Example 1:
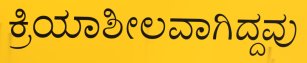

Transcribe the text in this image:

ಕ್ರಿಯಾಶೀಲವಾಗಿದ್ದವು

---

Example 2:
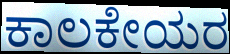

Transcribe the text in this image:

ಕಾಲಕೇಯರ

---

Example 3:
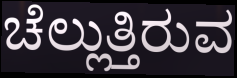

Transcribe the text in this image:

ಚೆಲ್ಲುತ್ತಿರುವ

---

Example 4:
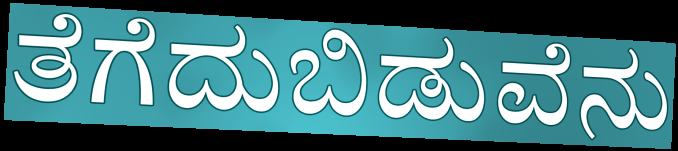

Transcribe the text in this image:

ತೆಗೆದುಬಿಡುವೆನು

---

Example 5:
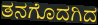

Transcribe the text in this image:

ತನಗೊದಗಿದ